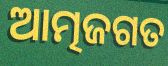
ଆତ୍ମଜଗତ